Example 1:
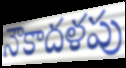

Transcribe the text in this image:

నౌకాదళపు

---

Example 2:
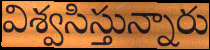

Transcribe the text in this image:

విశ్వసిస్తున్నారు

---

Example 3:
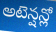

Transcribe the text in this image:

అటెన్షన్లో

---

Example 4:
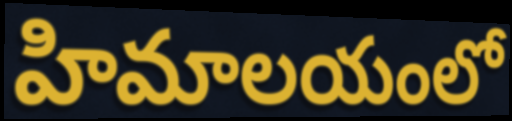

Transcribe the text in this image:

హిమాలయంలో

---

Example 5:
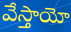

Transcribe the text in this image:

వేస్తాయో